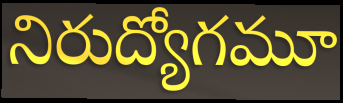
నిరుద్యోగమూ